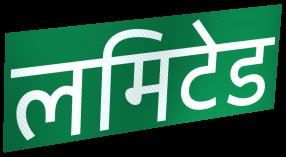
लमिटेड